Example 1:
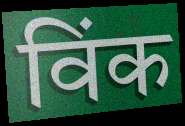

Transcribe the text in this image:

विंक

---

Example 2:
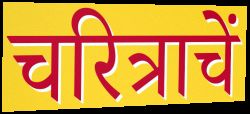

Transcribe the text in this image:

चरित्राचें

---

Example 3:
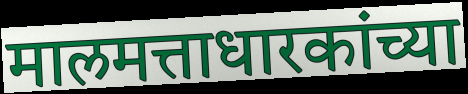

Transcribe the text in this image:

मालमत्ताधारकांच्या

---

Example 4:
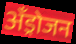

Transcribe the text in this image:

अँड्रोजन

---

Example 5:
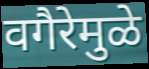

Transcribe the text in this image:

वगैरेमुळे